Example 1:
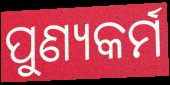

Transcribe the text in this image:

ପୁଣ୍ୟକର୍ମ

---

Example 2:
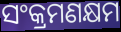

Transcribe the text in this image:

ସଂକ୍ରମଣକ୍ଷମ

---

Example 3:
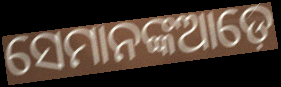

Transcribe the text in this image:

ସେମାନଙ୍କଆଡ଼େ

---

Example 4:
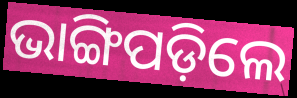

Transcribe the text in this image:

ଭାଙ୍ଗିପଡ଼ିଲେ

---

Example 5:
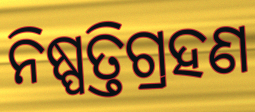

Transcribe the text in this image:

ନିଷ୍ପତ୍ତିଗ୍ରହଣ